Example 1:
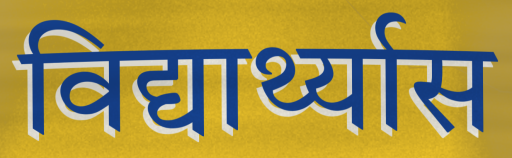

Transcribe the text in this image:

विद्यार्थ्यास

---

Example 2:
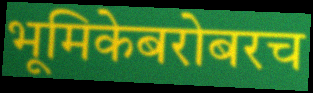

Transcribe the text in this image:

भूमिकेबरोबरच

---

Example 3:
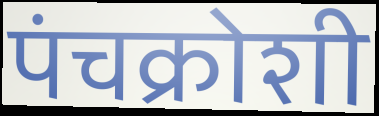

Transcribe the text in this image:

पंचक्रोशी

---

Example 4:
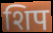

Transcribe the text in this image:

शिप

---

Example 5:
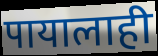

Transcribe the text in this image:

पायालाही